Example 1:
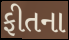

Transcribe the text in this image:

ફીતના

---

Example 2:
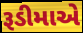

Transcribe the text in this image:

રૂડીમાએ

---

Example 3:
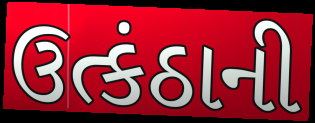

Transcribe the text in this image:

ઉત્કંઠાની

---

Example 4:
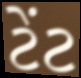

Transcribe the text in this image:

ટેંટ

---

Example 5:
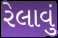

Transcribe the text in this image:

રેલાવું